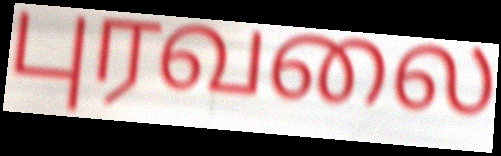
புரவலை